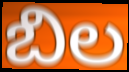
బిల